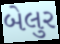
બેલુર